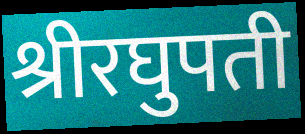
श्रीरघुपती